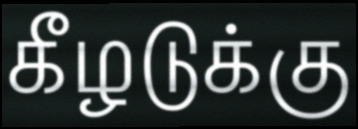
கீழடுக்கு